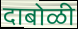
दाबोळी